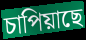
চাপিয়াছে